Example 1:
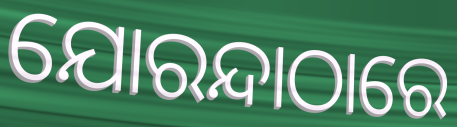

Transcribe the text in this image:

ଯୋରନ୍ଦାଠାରେ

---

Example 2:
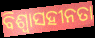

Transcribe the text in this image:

ବିଶ୍ୱାସହୀନତା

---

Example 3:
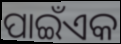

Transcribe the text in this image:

ପାଇଁଏକ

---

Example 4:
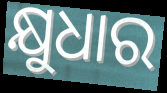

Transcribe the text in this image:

କ୍ଷୁଧାର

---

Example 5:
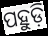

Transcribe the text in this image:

ପହୁଡ଼ି